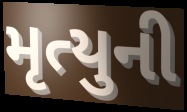
મૃત્યુની